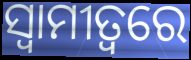
ସ୍ୱାମୀତ୍ୱରେ